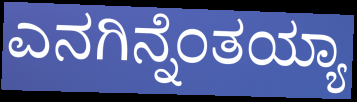
ಎನಗಿನ್ನೆಂತಯ್ಯಾ